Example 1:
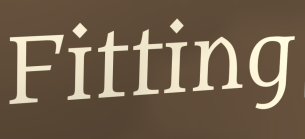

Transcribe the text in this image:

Fitting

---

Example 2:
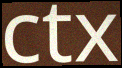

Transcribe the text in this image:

ctx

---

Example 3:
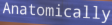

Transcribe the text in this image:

Anatomically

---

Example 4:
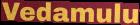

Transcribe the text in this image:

Vedamulu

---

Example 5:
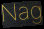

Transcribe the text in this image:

Nag